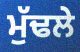
ਮੁੱਢਲੇ